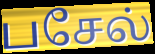
பசேல்